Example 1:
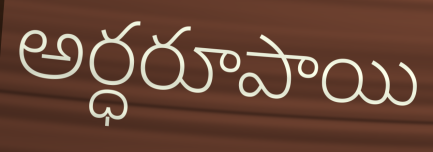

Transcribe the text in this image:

అర్ధరూపాయి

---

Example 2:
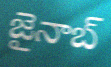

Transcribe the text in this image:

జైనాబ్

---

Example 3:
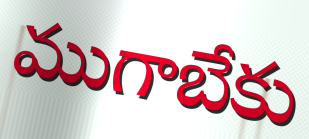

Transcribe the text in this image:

ముగాబేకు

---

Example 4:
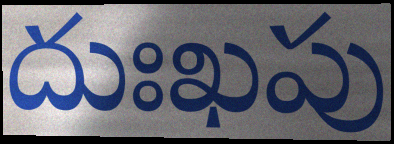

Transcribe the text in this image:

దుఃఖపు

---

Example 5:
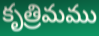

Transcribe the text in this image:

కృత్రిమము